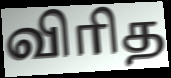
விரித